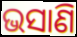
ଭସାଣି